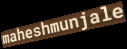
maheshmunjale